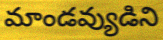
మాండవ్యుడిని